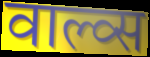
वाल्व्स